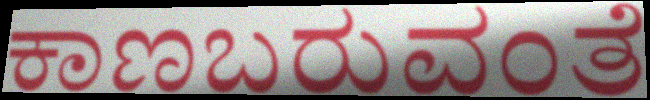
ಕಾಣಬರುವಂತೆ